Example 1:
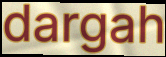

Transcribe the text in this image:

dargah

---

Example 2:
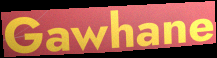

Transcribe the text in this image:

Gawhane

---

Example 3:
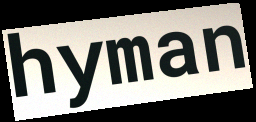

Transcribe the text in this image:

hyman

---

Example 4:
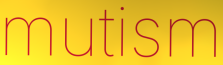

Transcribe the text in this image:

mutism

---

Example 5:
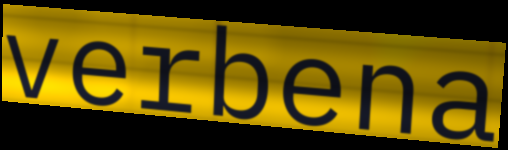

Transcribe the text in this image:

verbena